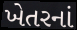
ખેતરનાં